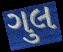
ગુલ